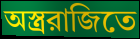
অস্ত্ররাজিতে